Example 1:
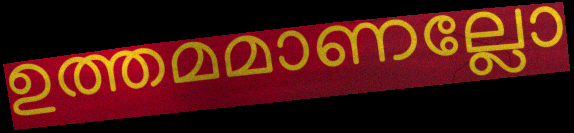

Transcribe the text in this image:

ഉത്തമമാണല്ലോ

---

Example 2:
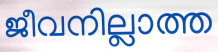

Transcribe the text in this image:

ജീവനില്ലാത്ത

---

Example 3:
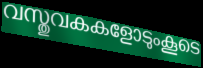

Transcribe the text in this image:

വസ്തുവകകളോടുംകൂടെ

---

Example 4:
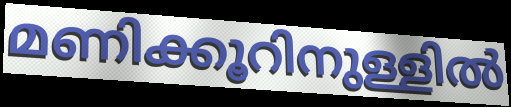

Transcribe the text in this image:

മണിക്കൂറിനുള്ളിൽ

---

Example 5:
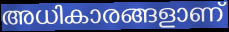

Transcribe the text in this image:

അധികാരങ്ങളാണ്